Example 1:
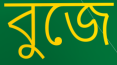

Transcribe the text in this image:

বুজে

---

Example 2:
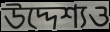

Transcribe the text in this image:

উদ্দেশ্যও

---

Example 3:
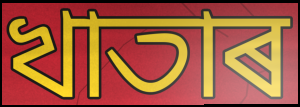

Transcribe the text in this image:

খাতাৰ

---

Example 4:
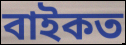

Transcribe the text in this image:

বাইকত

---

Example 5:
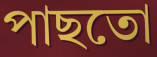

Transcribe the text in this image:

পাছতো